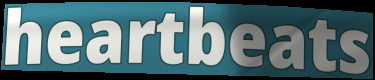
heartbeats